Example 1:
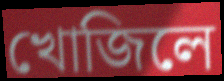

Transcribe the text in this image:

খোজিলে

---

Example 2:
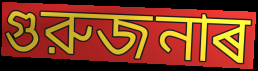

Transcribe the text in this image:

গুৰুজনাৰ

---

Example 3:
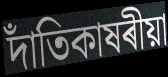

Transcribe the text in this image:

দাঁতিকাষৰীয়া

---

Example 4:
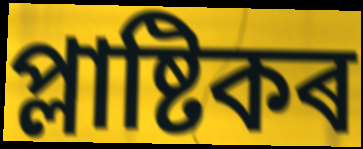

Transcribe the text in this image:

প্লাষ্টিকৰ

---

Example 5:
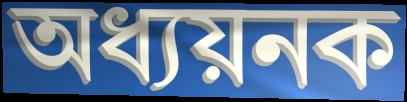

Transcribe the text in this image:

অধ্যয়নক